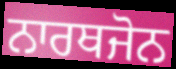
ਨਾਰਥਜੋਨ